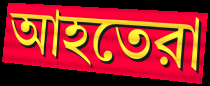
আহতেরা